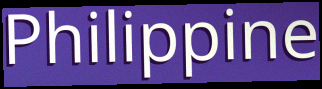
Philippine